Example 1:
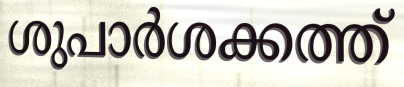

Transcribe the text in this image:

ശുപാർശക്കത്ത്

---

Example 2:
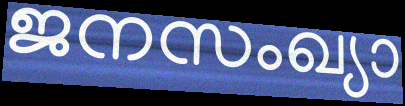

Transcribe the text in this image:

ജനസംഖ്യാ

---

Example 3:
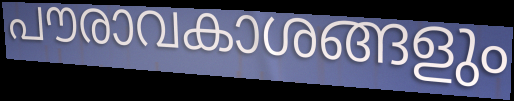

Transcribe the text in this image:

പൗരാവകാശങ്ങളും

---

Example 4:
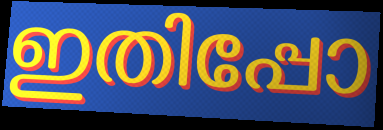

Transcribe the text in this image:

ഇതിപ്പോ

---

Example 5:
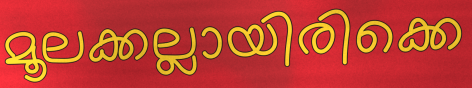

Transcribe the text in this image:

മൂലക്കല്ലായിരിക്കെ